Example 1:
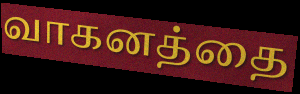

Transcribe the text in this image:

வாகனத்தை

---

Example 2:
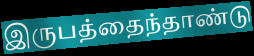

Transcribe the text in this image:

இருபத்தைந்தாண்டு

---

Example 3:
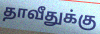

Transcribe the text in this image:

தாவீதுக்கு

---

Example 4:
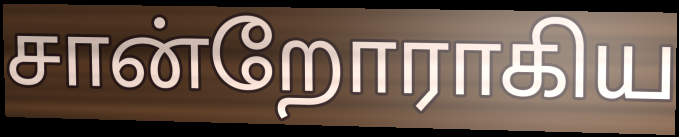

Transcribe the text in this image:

சான்றோராகிய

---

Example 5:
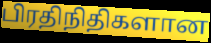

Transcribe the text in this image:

பிரதிநிதிகளான